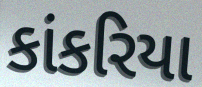
કાંકરિયા